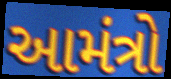
આમંત્રો